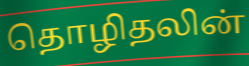
தொழிதலின்